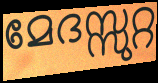
മേദസ്സുറ്റ